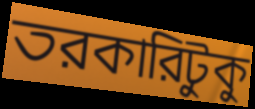
তরকারিটুকু